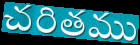
చరితము